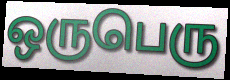
ஒருபெரு